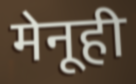
मेनूही